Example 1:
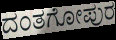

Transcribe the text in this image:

ದಂತಗೋಪುರ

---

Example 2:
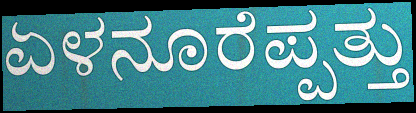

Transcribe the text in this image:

ಏಳನೂರೆಪ್ಪತ್ತು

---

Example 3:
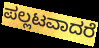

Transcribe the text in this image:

ಪಲ್ಲಟವಾದರೆ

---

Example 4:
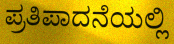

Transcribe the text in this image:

ಪ್ರತಿಪಾದನೆಯಲ್ಲಿ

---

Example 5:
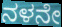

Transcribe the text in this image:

ನಳನೇ